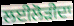
ਲਈਲੋੜੀਦਾ